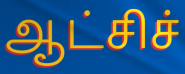
ஆட்சிச்